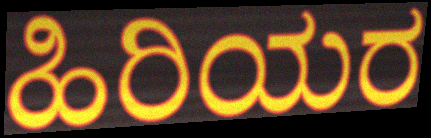
ಹಿರಿಯರ